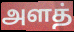
அளத்